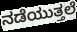
ನಡೆಯುತ್ತಲೆ